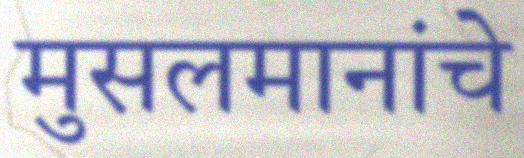
मुसलमानांचे